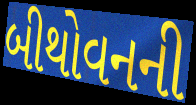
બીથોવનની